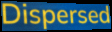
Dispersed